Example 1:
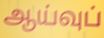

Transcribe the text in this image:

ஆய்வுப்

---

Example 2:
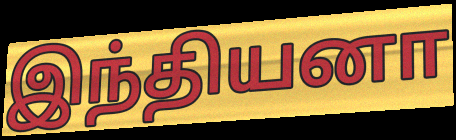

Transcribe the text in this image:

இந்தியனா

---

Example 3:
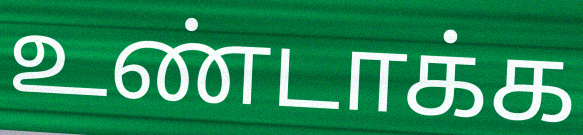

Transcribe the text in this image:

உண்டாக்க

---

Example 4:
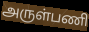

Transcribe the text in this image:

அருள்பணி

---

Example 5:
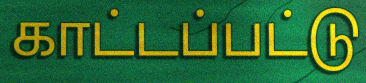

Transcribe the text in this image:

காட்டப்பட்டு